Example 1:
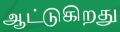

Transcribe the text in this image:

ஆட்டுகிறது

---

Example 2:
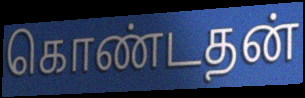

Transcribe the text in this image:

கொண்டதன்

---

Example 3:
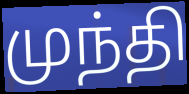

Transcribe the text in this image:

முந்தி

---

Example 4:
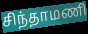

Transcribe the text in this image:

சிந்தாமணி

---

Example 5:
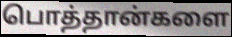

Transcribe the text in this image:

பொத்தான்களை